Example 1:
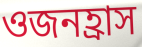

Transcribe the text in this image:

ওজনহ্রাস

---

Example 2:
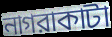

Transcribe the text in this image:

নাগরাকাটা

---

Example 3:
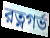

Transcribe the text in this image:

রত্নগর্ভ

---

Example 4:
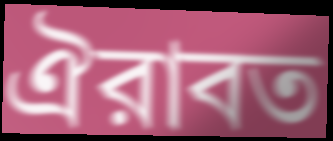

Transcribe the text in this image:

ঐরাবত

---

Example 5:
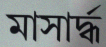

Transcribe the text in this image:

মাসার্দ্ধ